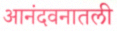
आनंदवनातली